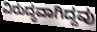
ವಿರುದ್ಧವಾಗಿದ್ದವು